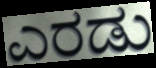
ಎರಡು